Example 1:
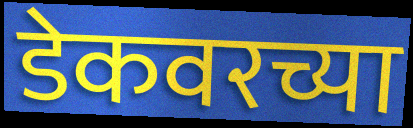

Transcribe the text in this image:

डेकवरच्या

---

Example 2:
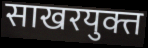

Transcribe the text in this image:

साखरयुक्त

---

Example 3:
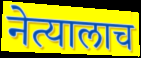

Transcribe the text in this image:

नेत्यालाच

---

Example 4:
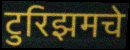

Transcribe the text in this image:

टुरिझमचे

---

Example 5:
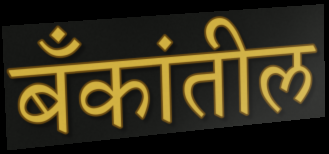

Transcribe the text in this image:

बॅंकांतील